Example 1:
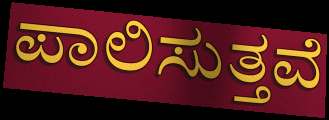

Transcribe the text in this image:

ಪಾಲಿಸುತ್ತವೆ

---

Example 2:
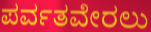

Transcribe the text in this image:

ಪರ್ವತವೇರಲು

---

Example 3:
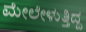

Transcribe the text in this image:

ಮೇಲೇಳುತ್ತಿದ್ದ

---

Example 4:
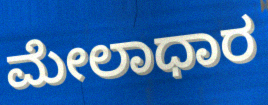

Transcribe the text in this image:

ಮೇಲಾಧಾರ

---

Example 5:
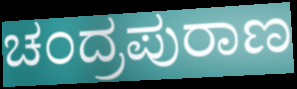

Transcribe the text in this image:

ಚಂದ್ರಪುರಾಣ